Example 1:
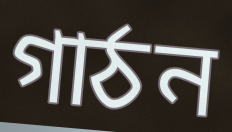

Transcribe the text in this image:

গাঠন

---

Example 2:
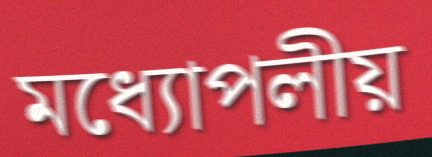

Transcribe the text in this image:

মধ্যোপলীয়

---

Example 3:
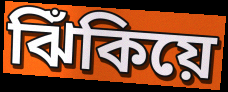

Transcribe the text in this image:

ঝিঁকিয়ে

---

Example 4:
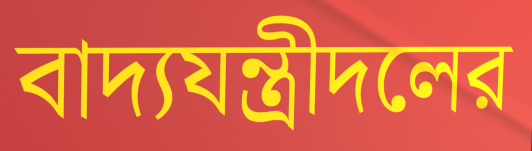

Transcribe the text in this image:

বাদ্যযন্ত্রীদলের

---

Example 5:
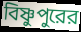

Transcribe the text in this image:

বিষ্ণুপুরের